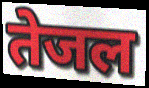
तेजल